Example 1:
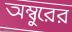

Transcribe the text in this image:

অম্বুরের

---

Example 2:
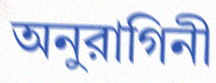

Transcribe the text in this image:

অনুরাগিনী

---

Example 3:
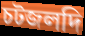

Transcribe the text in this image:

চটজলদি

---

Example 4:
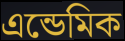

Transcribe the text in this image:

এন্ডেমিক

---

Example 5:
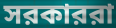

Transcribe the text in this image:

সরকাররা